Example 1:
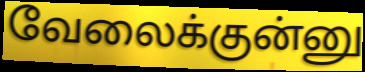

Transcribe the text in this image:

வேலைக்குன்னு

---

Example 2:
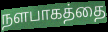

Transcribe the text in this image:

நளபாகத்தை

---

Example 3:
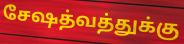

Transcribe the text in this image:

சேஷத்வத்துக்கு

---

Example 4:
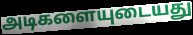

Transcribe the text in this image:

அடிகளையுடையது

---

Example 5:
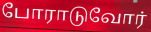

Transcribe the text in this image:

போராடுவோர்